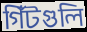
গিঁটগুলি